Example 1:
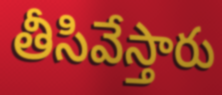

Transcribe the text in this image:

తీసివేస్తారు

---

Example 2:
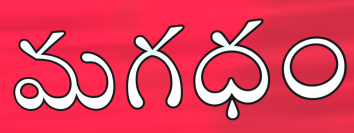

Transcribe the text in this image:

మగధం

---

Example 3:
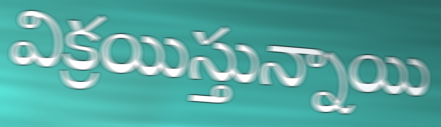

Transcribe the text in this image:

విక్రయిస్తున్నాయి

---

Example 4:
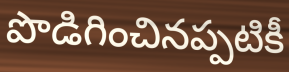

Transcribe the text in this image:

పొడిగించినప్పటికీ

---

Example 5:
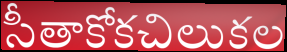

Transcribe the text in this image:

సీతాకోకచిలుకల